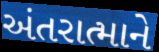
અંતરાત્માને